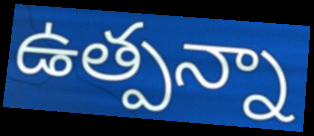
ఉత్పన్నా